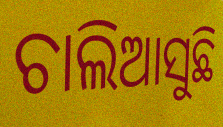
ଚାଲିଆସୁଛି